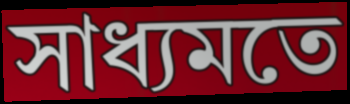
সাধ্যমতে